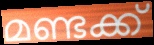
മണ്ടക്ക്